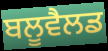
ਬਲੂਵੈਲਡ